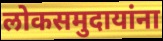
लोकसमुदायांना